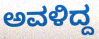
ಅವಳಿದ್ದ